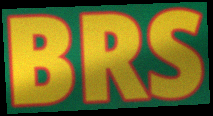
BRS